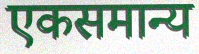
एकसमान्य